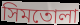
সিমতোলা